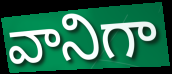
వానిగా